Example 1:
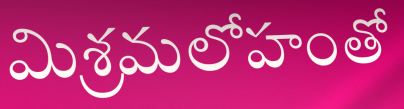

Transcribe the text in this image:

మిశ్రమలోహంతో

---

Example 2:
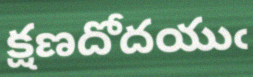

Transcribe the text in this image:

క్షణదోదయుఁ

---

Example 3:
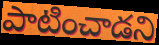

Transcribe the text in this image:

పాటించాడని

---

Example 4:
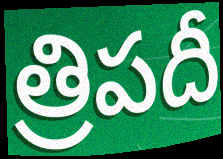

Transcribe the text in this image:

త్రిపదీ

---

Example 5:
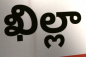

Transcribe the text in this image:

ఖిల్లా